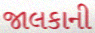
જાલકાની